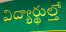
విద్యార్థుల్తో